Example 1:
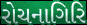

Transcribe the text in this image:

રોચનાગિરિ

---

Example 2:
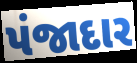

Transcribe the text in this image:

પંજાદાર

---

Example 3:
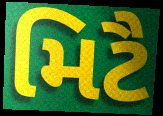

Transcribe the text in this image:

મિટૈ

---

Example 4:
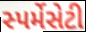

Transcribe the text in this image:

સ્પર્મેસેટી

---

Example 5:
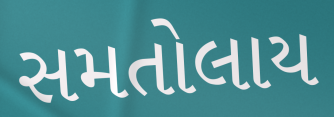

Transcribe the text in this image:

સમતોલાય